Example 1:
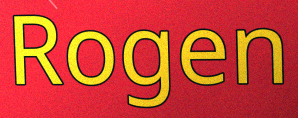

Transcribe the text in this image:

Rogen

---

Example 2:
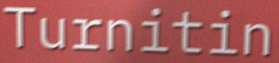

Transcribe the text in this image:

Turnitin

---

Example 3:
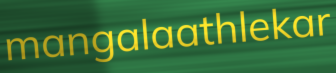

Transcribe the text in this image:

mangalaathlekar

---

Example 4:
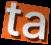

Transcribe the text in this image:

ta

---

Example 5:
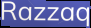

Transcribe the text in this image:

Razzaq